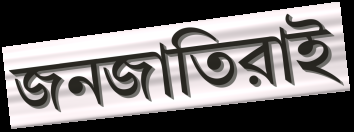
জনজাতিরাই